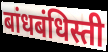
बांधबंधिस्ती